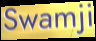
Swamji